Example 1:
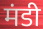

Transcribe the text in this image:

मंडी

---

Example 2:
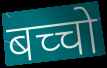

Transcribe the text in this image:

बच्चो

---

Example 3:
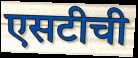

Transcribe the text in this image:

एसटीची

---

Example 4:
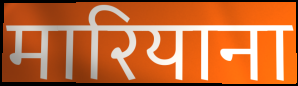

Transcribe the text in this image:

मारियाना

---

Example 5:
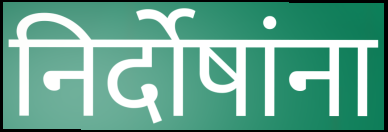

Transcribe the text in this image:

निर्दोषांना